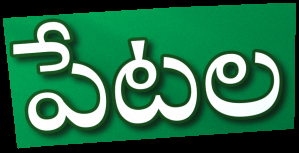
పేటల